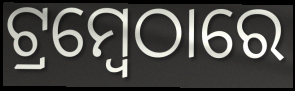
ଟ୍ରମ୍ବେଠାରେ